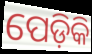
ପେଡ଼ିକି